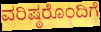
ವರಿಷ್ಠರೊಂದಿಗೆ